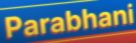
Parabhani